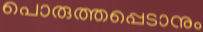
പൊരുത്തപ്പെടാനും